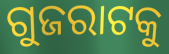
ଗୁଜରାଟକୁ